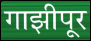
गाझीपूर